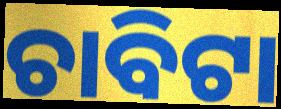
ଚାବିଟା